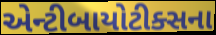
એન્ટીબાયોટીક્સના